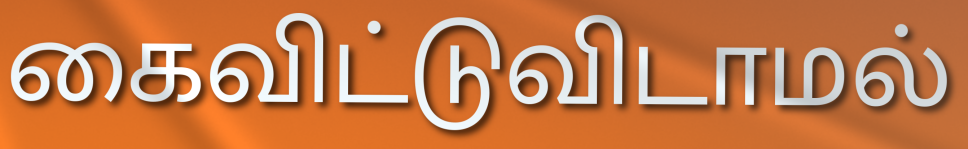
கைவிட்டுவிடாமல்